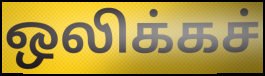
ஒலிக்கச்